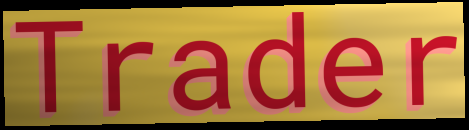
Trader